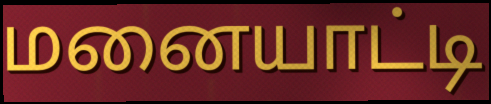
மனையாட்டி